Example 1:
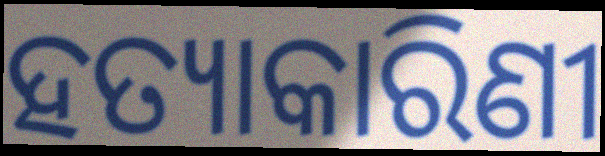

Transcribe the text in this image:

ହତ୍ୟାକାରିଣୀ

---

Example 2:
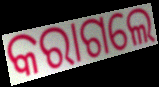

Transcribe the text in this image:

କରାଗଲେ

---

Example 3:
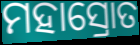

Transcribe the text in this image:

ମହାସ୍ରୋତ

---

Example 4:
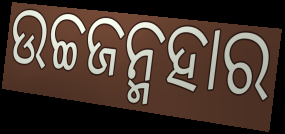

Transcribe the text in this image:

ଉଚ୍ଚଜନ୍ମହାର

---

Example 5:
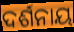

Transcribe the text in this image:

ଦର୍ଶନାୟ